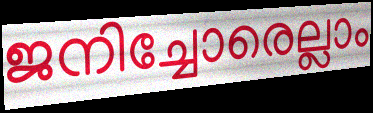
ജനിച്ചോരെല്ലാം